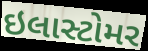
ઇલાસ્ટોમર